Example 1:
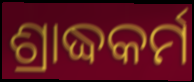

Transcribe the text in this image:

ଶ୍ରାଦ୍ଧକର୍ମ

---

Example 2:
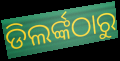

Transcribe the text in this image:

ଡିଲର୍ଙ୍କଠାରୁ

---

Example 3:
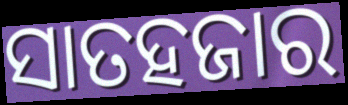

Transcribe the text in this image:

ସାତହଜାର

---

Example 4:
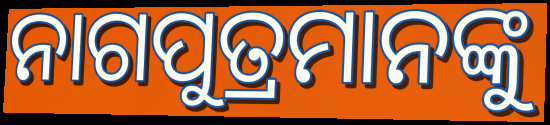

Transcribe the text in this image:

ନାଗପୁତ୍ରମାନଙ୍କୁ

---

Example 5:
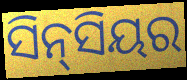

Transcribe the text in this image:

ସିନ୍‌ସିୟର